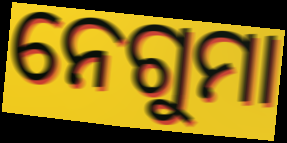
ନେଗୁମା